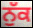
ਨੁੱਕ